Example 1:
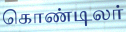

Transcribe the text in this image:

கொண்டிலர்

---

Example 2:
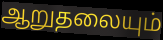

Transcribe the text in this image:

ஆறுதலையும்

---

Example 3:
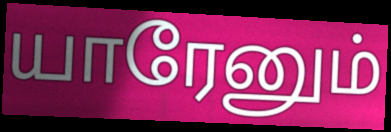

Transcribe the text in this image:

யாரேனும்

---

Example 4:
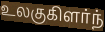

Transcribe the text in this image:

உலகுகிளர்ந்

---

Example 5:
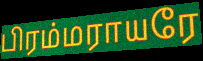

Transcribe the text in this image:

பிரம்மராயரே